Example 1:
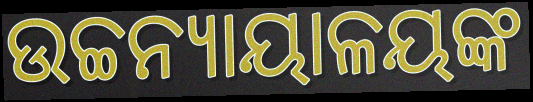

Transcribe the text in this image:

ଉଚ୍ଚନ୍ୟାୟାଳୟଙ୍କ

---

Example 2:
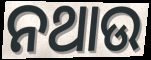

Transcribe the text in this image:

ନଥାଉ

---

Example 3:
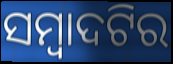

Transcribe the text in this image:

ସମ୍ବାଦଟିର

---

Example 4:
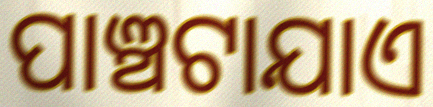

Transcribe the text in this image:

ପାଞ୍ଚଟାଯାଏ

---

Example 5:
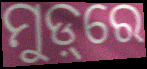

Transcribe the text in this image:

ମୁଡ଼୍‌ରେ